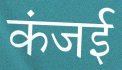
कंजई